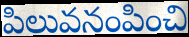
పిలువనంపించి